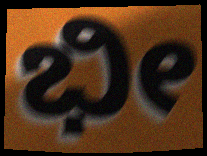
ಭೀ